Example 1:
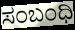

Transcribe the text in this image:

ಸಂಬಂಧಿ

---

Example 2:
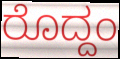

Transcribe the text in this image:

ರೊದ್ದಂ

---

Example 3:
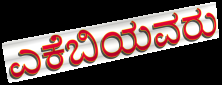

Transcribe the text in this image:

ಎಕೆಬಿಯವರು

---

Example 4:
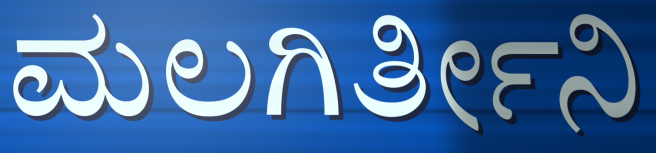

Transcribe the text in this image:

ಮಲಗಿರ್ತೀನಿ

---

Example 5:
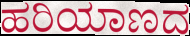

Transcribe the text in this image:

ಹರಿಯಾಣದ